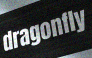
dragonfly